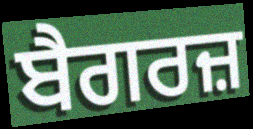
ਬੈਗਰਜ਼